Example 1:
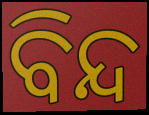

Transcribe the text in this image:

ବିନ୍ଦ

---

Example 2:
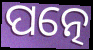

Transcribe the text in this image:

ପତ୍ନେ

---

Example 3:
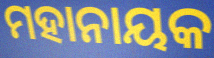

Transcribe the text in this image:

ମହାନାୟକ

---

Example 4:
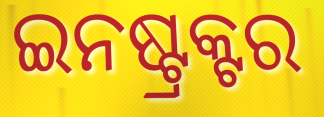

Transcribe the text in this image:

ଇନଷ୍ଟ୍ରକ୍ଟର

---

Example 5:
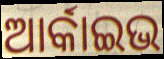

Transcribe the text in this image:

ଆର୍କାଇଭ